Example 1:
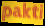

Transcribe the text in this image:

pakti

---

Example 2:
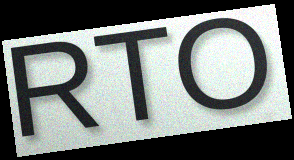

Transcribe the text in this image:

RTO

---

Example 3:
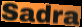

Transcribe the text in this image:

Sadra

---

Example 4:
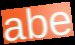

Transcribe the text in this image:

abe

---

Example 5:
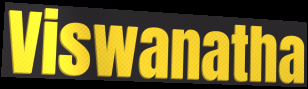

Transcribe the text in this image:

Viswanatha